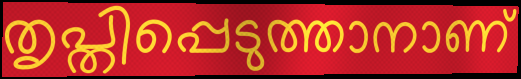
തൃപ്തിപ്പെടുത്താനാണ്